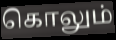
கொலும்